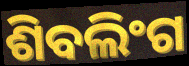
ଶିବଲିଂଗ